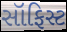
સૉફિસ્ટ